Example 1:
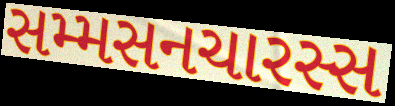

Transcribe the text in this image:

સમ્મસનચારસ્સ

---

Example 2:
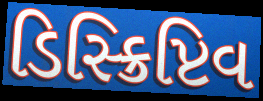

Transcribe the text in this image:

ડિસ્ક્રિપ્ટિવ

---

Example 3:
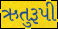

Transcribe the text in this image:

ઋતુરૂપી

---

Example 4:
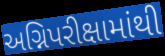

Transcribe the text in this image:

અગ્નિપરીક્ષામાંથી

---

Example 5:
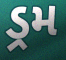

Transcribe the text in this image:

ડ્રમ